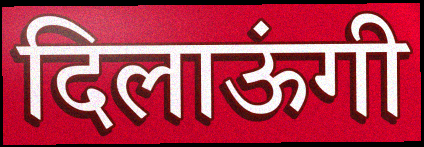
दिलाऊंगी